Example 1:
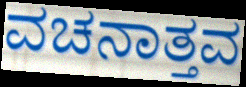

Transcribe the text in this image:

ವಚನಾತ್ತವ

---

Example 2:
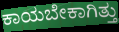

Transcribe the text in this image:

ಕಾಯಬೇಕಾಗಿತ್ತು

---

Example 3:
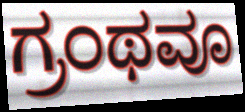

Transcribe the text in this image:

ಗ್ರಂಥವೂ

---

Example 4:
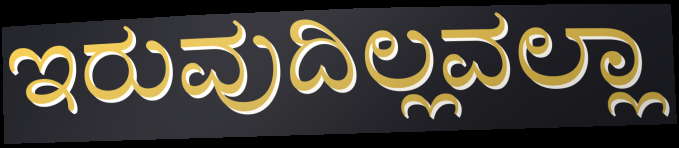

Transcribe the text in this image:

ಇರುವುದಿಲ್ಲವಲ್ಲಾ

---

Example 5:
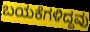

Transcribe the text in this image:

ಬಯಕೆಗಳಿದ್ದವು